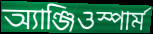
অ্যাঞ্জিওস্পার্ম